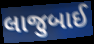
લાજુબાઈ